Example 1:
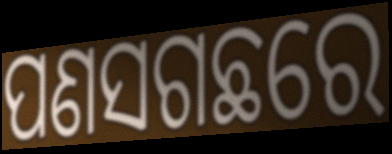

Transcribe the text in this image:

ପଣସଗଛରେ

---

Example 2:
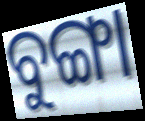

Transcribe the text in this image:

ବୁଙ୍ଗା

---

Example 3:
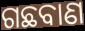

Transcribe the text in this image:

ଗଛବାଣ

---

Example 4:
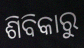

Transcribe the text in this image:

ଶିବିକାରୁ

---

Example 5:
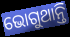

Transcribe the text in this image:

ଭୋଗୁଥାନ୍ତି